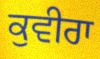
ਕੁਵੀਰਾ